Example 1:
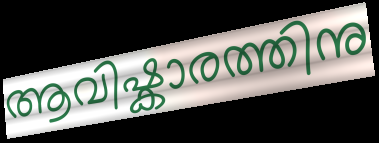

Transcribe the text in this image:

ആവിഷ്കാരത്തിനു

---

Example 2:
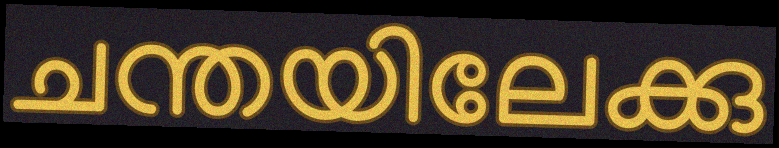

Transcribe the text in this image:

ചന്തയിലേക്കു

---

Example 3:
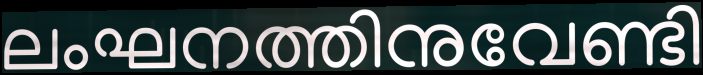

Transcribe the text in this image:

ലംഘനത്തിനുവേണ്ടി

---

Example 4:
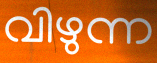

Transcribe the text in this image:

വിഴുന്ന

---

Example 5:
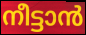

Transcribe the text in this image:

നീട്ടാൻ